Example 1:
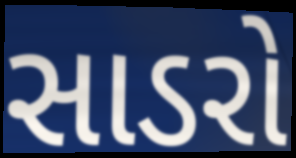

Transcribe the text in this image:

સાડરો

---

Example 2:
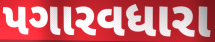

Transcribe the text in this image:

પગારવધારા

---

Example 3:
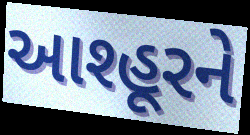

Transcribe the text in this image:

આશ્હૂરને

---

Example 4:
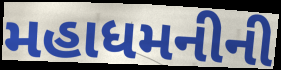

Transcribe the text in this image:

મહાધમનીની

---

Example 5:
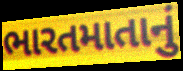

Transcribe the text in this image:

ભારતમાતાનું